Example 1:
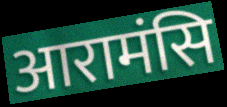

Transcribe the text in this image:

आरामंसि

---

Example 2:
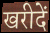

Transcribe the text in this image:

खरीदें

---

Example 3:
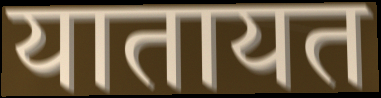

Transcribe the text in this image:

यातायत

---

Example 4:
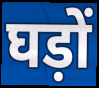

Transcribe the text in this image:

घड़ों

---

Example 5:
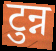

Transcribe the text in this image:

टुन्न